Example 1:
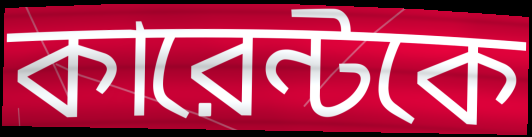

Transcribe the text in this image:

কারেন্টকে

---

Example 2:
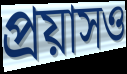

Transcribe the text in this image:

প্রয়াসও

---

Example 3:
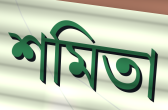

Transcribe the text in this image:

শমিতা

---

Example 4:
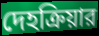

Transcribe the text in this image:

দেহক্রিয়ার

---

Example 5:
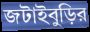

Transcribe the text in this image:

জটাইবুড়ির